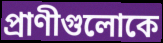
প্রাণীগুলোকে